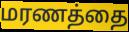
மரணத்தை